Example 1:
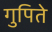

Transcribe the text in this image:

गुपिते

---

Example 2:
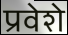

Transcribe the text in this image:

प्रवेशे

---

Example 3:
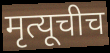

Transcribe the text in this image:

मृत्यूचीच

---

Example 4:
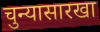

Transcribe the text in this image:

चुन्यासारखा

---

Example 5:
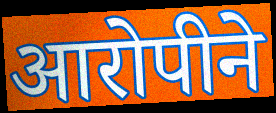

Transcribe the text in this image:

आरोपीने